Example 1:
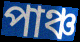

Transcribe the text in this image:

পাঞ্চ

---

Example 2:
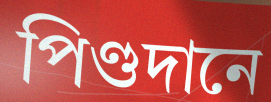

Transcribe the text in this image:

পিণ্ডদানে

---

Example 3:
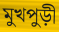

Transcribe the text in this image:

মুখপুড়ী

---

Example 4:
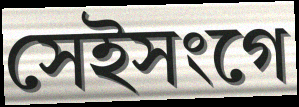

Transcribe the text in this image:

সেইসংগে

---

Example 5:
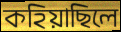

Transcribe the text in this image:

কহিয়াছিলে